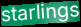
starlings